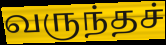
வருந்தச்